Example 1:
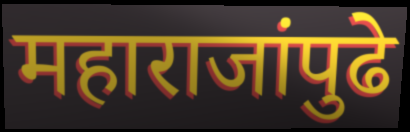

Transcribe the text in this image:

महाराजांपुढे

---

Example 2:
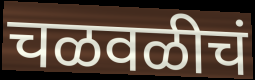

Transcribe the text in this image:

चळवळीचं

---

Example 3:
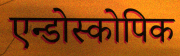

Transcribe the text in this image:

एन्डोस्कोपिक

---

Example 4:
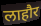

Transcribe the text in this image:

लाहौर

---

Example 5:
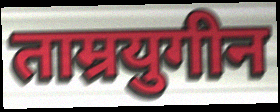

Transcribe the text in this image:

ताम्रयुगीन